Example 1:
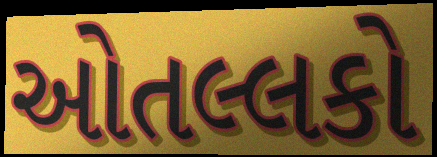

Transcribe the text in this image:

ઓતલ્લકો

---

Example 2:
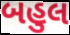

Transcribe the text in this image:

બહુલ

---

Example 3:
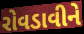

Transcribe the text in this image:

રોવડાવીને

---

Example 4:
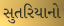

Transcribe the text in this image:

સુતરિયાનો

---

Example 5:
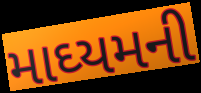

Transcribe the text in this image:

માઘ્યમની